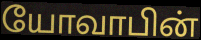
யோவாபின்